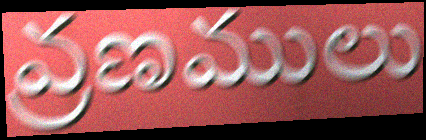
వ్రణములు